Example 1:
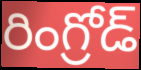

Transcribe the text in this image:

రింగ్రోడ్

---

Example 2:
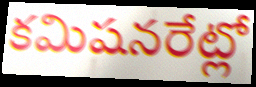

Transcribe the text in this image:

కమిషనరేట్లో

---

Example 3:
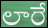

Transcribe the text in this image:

లారే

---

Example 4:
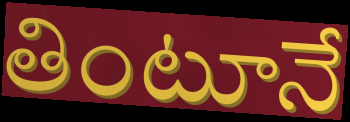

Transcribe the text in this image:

తింటూనే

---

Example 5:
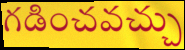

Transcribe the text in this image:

గడించవచ్చు